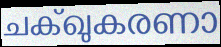
ചക്ഖുകരണാ